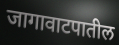
जागावाटपातील